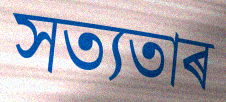
সত্যতাৰ